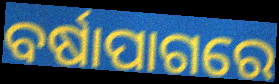
ବର୍ଷାପାଗରେ